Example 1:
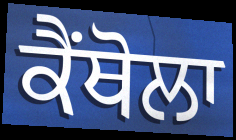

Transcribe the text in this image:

ਕੈਂਥੋਲਾ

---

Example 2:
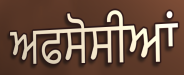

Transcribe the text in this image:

ਅਫਸੋਸੀਆਂ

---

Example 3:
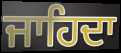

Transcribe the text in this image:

ਜਾਹਿਦਾ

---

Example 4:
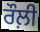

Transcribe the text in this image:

ਰੌਲ਼ੀ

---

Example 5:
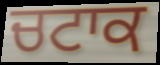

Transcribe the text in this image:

ਚਟਾਕ